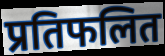
प्रतिफलित